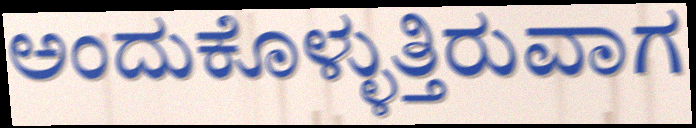
ಅಂದುಕೊಳ್ಳುತ್ತಿರುವಾಗ